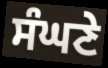
ਸੰਘਣੇ